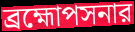
ব্রহ্মোপসনার